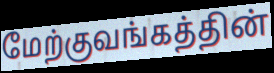
மேற்குவங்கத்தின்